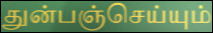
துன்பஞ்செய்யும்